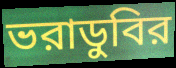
ভরাডুবির